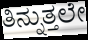
ತಿನ್ನುತ್ತಲೇ